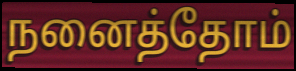
நனைத்தோம்